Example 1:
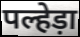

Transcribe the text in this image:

पल्हेड़ा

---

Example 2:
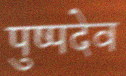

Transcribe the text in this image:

पुष्पदेव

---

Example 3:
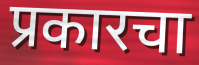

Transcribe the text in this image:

प्रकारचा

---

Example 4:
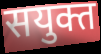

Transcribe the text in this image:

सयुक्‍त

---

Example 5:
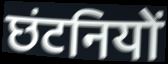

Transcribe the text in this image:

छंटनियों